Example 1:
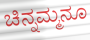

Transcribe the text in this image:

ಚಿನ್ನಮ್ಮನೂ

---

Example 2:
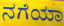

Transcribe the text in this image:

ನಗೆಯಾ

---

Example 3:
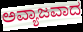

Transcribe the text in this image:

ಅವ್ಯಾಜವಾದ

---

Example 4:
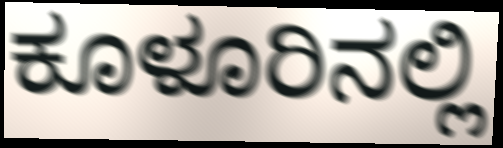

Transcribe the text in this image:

ಕೂಳೂರಿನಲ್ಲಿ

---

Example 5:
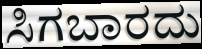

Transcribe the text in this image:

ಸಿಗಬಾರದು